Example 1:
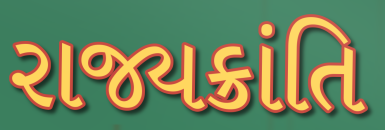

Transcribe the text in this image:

રાજ્યક્રાંતિ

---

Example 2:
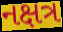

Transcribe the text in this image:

નક્ષત્ર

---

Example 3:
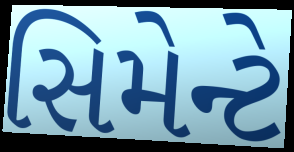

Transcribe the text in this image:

સિમેન્ટે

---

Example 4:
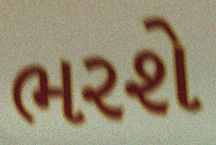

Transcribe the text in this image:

ભરશે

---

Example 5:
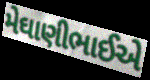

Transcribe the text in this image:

મેઘાણીભાઈએ